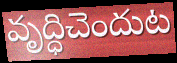
వృద్ధిచెందుట